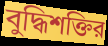
বুদ্ধিশক্তির